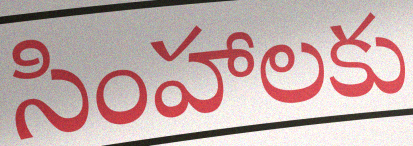
సింహాలకు